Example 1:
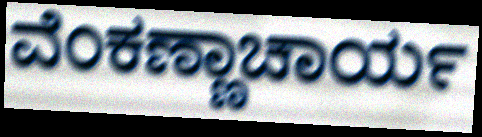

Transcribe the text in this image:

ವೆಂಕಣ್ಣಾಚಾರ್ಯ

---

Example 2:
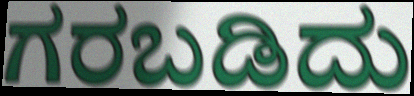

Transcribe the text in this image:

ಗರಬಡಿದು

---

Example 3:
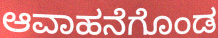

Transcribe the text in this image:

ಆವಾಹನೆಗೊಂಡ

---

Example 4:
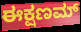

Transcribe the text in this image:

ಈಕ್ಷಣಮ್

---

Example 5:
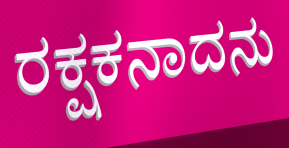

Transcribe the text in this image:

ರಕ್ಷಕನಾದನು